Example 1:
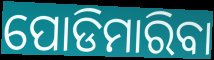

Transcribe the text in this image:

ପୋଡିମାରିବା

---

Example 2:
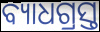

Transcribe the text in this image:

ବ୍ୟାଧଗ୍ରସ୍ତ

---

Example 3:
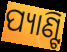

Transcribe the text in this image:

ପ୍ୟାଣ୍ଟି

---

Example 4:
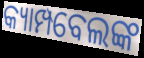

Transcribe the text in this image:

କ୍ୟାମ୍ପବେଲଙ୍କ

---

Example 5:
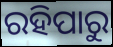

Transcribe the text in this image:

ରହିପାରୁ